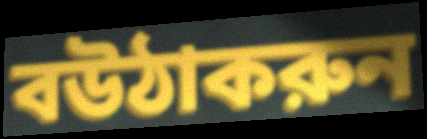
বউঠাকরুন